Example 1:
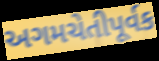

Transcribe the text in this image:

અગમચેતીપૂર્વક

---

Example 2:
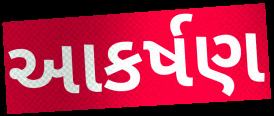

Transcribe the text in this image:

આકર્ષણ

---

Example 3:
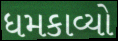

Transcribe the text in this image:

ધમકાવ્યો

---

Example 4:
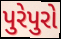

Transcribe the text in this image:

પુરેપુરો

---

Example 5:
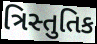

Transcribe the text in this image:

ત્રિસ્તુતિક